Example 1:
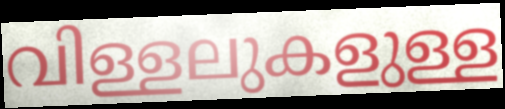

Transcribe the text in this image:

വിള്ളലുകളുള്ള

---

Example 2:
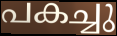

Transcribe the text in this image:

പകച്ചു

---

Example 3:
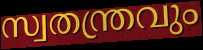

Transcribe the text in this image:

സ്വതന്ത്രവും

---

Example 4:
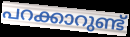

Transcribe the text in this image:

പറക്കാറുണ്ട്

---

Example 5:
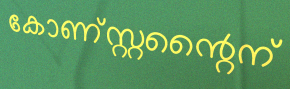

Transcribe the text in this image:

കോണ്സ്റ്റന്റൈന്